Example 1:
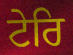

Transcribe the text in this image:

ਟੇਰਿ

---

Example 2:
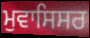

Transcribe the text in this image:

ਮੁਵਾਸਿਸਰ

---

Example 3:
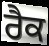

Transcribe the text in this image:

ਰੈਕ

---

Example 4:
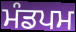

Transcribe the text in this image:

ਮੰਡਪਮ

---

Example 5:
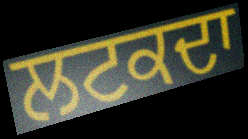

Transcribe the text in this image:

ਲਟਕਦਾ